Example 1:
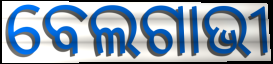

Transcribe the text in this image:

ବେଲଗାଭୀ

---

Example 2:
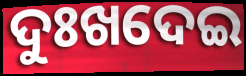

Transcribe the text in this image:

ଦୁଃଖଦେଇ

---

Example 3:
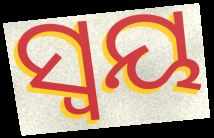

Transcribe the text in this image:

ସ୍ବୟ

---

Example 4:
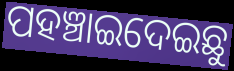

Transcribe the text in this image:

ପହଞ୍ଚାଇଦେଇଛୁ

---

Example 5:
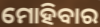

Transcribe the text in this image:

ମୋହିବାର